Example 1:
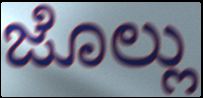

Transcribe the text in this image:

ಜೊಲ್ಲು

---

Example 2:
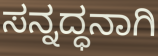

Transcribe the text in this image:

ಸನ್ನದ್ಧನಾಗಿ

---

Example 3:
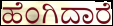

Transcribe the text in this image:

ಹೆಂಗಿದಾರೆ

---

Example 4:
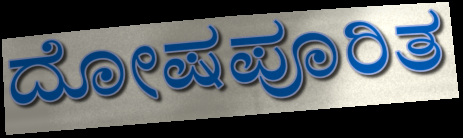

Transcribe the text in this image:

ದೋಷಪೂರಿತ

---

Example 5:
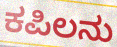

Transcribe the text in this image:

ಕಪಿಲನು